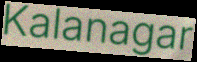
Kalanagar